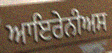
ਆਇਰੇਨੀਅਸ